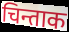
चिन्ताक